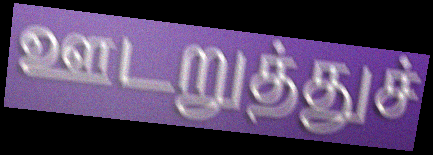
ஊடறுத்துச்